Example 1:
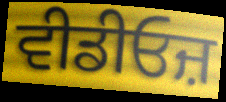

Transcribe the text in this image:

ਵੀਡੀਓਜ਼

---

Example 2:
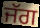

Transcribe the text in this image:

ਜੱਗ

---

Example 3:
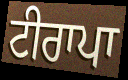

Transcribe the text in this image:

ਟੀਰਾਪਾ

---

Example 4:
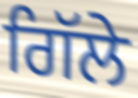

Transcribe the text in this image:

ਗਿੱਲੇ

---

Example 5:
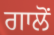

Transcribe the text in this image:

ਗਾਲੋਂ